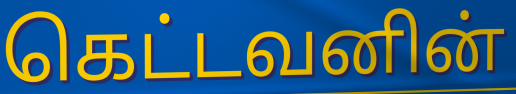
கெட்டவனின்